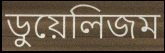
ডুয়েলিজম